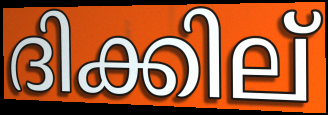
ദിക്കില്